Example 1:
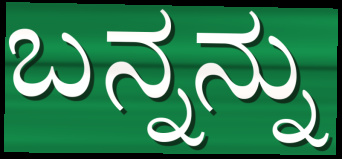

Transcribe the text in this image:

ಬನ್ನನ್ನು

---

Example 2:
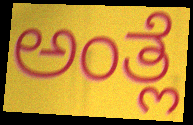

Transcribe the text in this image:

ಅಂತ್ಲೆ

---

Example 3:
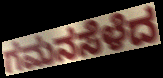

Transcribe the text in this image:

ಗಮನಸೆಳೆದ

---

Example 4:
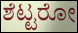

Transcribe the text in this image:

ಶೆಟ್ಟರೋ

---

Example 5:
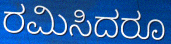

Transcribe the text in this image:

ರಮಿಸಿದರೂ